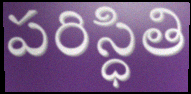
పరిస్ధితి